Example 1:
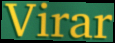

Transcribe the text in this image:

Virar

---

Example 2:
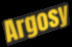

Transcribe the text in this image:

Argosy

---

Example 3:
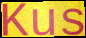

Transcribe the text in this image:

Kus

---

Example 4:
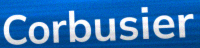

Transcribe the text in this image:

Corbusier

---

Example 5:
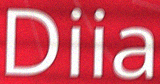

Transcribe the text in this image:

Diia